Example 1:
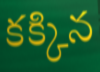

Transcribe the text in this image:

కక్కిన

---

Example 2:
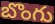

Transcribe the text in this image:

బొంగు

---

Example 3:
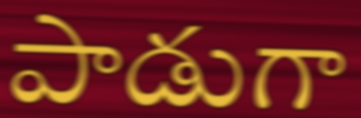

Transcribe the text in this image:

పాడుగా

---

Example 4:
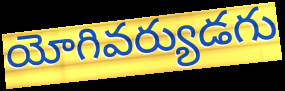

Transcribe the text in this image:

యోగివర్యుడగు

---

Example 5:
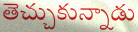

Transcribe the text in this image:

తెచ్చుకున్నాడు